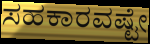
ಸಹಕಾರವಷ್ಟೇ